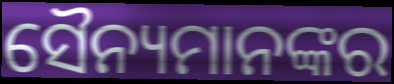
ସୈନ୍ୟମାନଙ୍କର